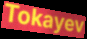
Tokayev